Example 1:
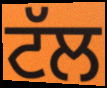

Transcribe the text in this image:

ਟੱਲ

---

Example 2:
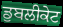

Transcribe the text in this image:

ਡੁਬਲੀਕੇਟ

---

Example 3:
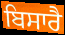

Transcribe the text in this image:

ਬਿਸਾਰੈ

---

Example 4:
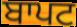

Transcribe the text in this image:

ਬਾਪਟ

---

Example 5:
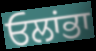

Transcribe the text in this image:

ਓਲਾਂਭਾ